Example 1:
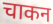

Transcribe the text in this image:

चाकन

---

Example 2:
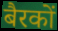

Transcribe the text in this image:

बैरकों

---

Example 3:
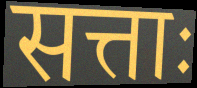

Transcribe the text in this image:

सत्ताः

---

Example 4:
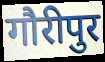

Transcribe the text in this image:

गौरीपुर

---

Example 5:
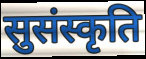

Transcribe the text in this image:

सुसंस्कृति